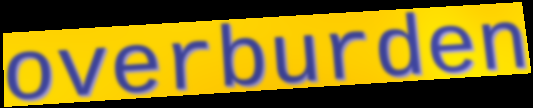
overburden